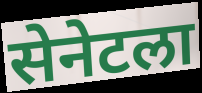
सेनेटला